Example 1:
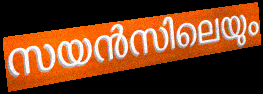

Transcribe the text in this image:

സയൻസിലെയും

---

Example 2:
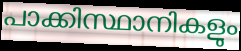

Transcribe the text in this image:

പാക്കിസ്ഥാനികളും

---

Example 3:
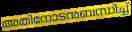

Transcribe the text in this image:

അതിനോടനുബന്ധിച്ച്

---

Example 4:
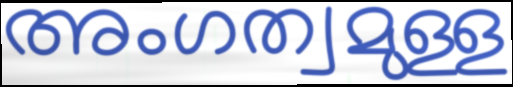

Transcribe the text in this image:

അംഗത്വമുള്ള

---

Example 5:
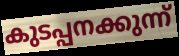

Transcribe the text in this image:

കുടപ്പനക്കുന്ന്